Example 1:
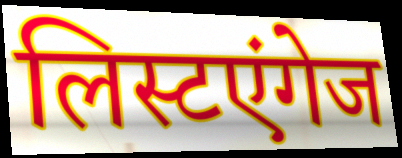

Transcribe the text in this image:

लिस्टएंगेज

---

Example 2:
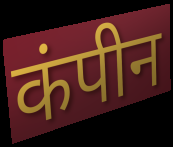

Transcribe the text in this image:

कंपीन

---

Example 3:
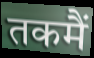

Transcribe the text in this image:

तकमैं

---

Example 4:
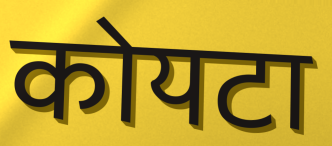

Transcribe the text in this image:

कोयटा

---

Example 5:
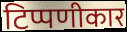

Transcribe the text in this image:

टिप्पणीकार